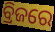
ବ୍ରିଜରେ